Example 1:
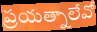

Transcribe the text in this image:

ప్రయత్నాలేవో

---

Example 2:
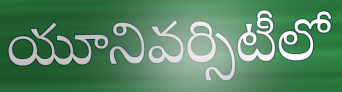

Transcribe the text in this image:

యూనివర్సిటీలో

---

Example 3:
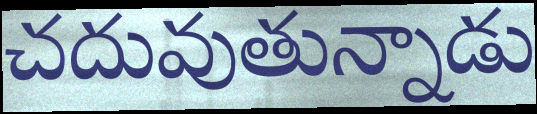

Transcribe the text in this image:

చదువుతున్నాడు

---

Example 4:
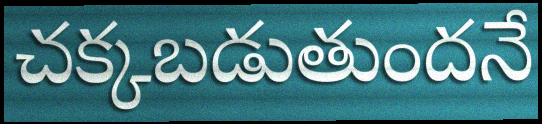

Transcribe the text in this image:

చక్కబడుతుందనే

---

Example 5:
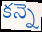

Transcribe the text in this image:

కన్నె